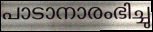
പാടാനാരംഭിച്ചു